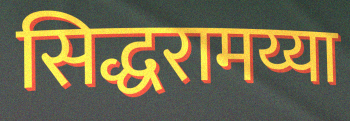
सिद्धरामय्या